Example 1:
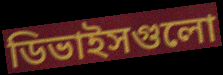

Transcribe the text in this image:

ডিভাইসগুলো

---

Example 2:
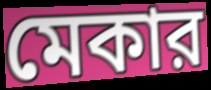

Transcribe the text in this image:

মেকার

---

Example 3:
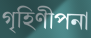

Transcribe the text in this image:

গৃহিণীপনা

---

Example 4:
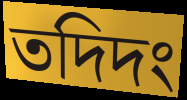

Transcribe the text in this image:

তদিদং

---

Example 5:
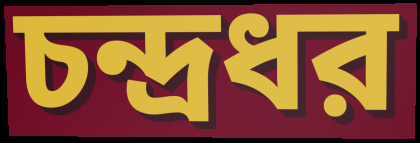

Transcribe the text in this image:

চন্দ্রধর